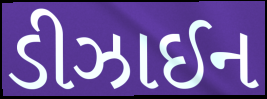
ડીઝાઈન